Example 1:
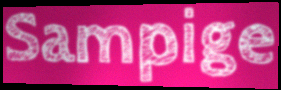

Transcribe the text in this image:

Sampige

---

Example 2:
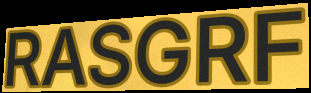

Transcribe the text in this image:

RASGRF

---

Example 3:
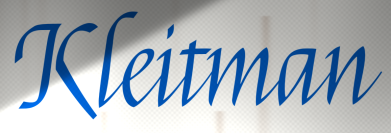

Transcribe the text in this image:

Kleitman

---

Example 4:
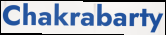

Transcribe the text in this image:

Chakrabarty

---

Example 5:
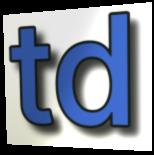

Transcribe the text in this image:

td